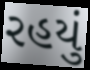
રહયું